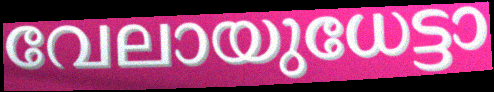
വേലായുധേട്ടാ